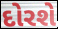
દોરશે